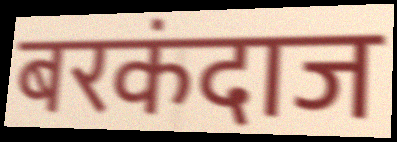
बरकंदाज